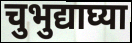
चुभुद्याघ्या